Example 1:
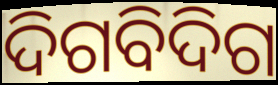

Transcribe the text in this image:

ଦିଗବିଦିଗ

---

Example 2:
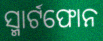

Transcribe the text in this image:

ସ୍ମାର୍ଟଫୋନ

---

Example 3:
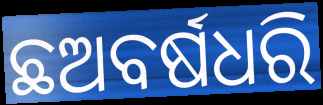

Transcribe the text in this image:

ଛଅବର୍ଷଧରି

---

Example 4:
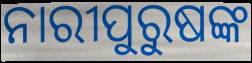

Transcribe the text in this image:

ନାରୀପୁରୁଷଙ୍କ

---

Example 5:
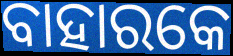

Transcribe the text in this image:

ବାହାରକେ